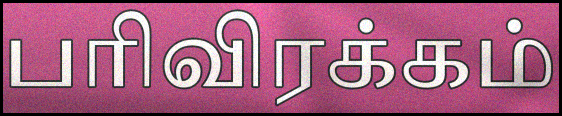
பரிவிரக்கம்